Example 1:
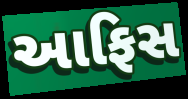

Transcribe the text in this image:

આફિસ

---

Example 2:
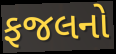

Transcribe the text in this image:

ફજલનો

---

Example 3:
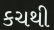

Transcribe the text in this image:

કચથી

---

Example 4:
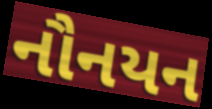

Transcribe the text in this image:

નૌનયન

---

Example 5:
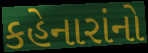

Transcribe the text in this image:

કહેનારાંનો